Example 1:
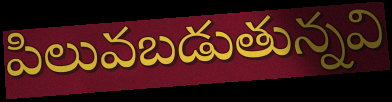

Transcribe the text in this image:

పిలువబడుతున్నవి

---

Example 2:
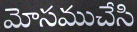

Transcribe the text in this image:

మోసముచేసి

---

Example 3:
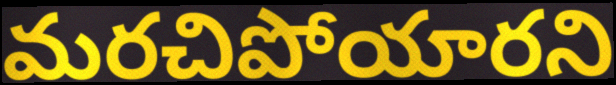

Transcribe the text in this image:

మరచిపోయారని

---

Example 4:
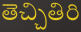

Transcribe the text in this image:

తెచ్చితిరి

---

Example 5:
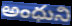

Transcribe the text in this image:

అంధుని